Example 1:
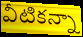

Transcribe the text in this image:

వీటికన్నా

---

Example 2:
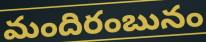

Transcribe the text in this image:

మందిరంబునం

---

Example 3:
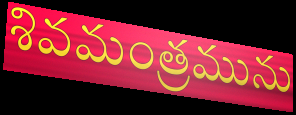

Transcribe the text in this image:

శివమంత్రమును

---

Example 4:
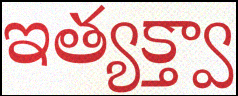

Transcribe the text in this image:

ఇత్యక్త్వా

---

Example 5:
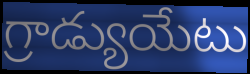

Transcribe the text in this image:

గ్రాడ్యుయేటు